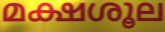
മക്ഷശൂല